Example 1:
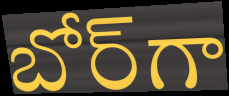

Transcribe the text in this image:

బోర్‌గా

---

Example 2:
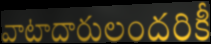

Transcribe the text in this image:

వాటాదారులందరికీ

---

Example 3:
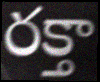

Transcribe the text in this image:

రక్తా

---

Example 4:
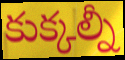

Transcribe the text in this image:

కుక్కల్నీ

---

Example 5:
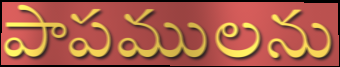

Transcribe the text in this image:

పాపములను